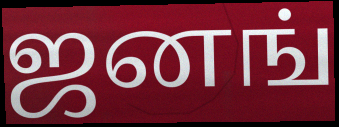
ஜனங்